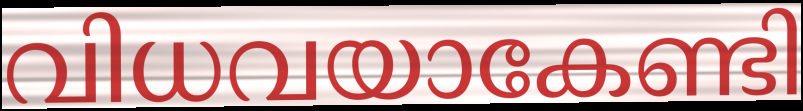
വിധവയാകേണ്ടി